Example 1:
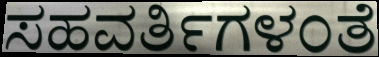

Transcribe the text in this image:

ಸಹವರ್ತಿಗಳಂತೆ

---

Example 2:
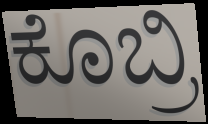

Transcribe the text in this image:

ಕೊಬ್ರಿ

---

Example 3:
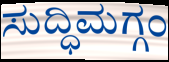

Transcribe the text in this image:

ಸುದ್ಧಿಮಗ್ಗಂ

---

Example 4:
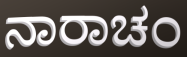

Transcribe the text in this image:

ನಾರಾಚಂ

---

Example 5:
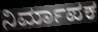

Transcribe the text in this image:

ನಿರ್ಮಾಪಕ